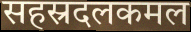
सहस्रदलकमल